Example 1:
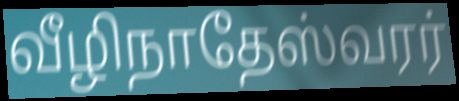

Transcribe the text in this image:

வீழிநாதேஸ்வரர்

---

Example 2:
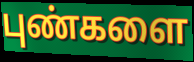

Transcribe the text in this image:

புண்களை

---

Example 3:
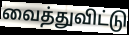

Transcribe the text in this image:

வைத்துவிட்டு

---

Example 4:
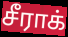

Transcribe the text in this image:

சீராக்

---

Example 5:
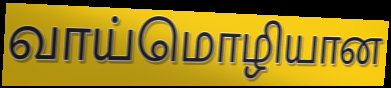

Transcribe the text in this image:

வாய்மொழியான